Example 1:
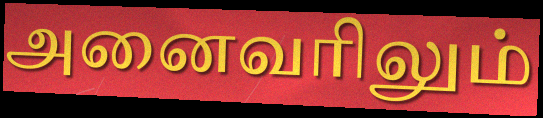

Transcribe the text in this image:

அனைவரிலும்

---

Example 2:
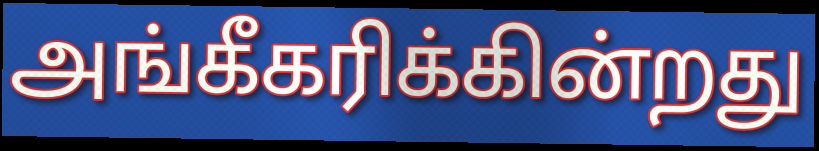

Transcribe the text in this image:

அங்கீகரிக்கின்றது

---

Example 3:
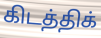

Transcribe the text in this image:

கிடத்திக்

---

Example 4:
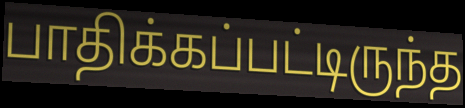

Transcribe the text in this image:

பாதிக்கப்பட்டிருந்த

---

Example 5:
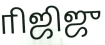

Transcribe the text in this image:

ரிஜிஜு